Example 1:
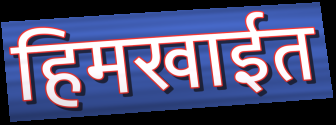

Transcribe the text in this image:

हिमखाईत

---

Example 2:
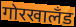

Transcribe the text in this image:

गोरखालॅंड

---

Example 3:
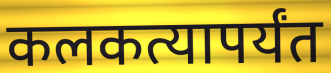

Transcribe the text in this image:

कलकत्यापर्यंत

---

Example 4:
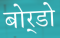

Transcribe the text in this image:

बोर्डो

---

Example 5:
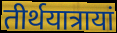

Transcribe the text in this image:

तीर्थयात्रायां